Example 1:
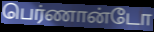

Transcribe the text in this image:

பெர்ணான்டோ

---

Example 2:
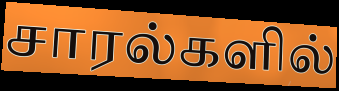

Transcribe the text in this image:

சாரல்களில்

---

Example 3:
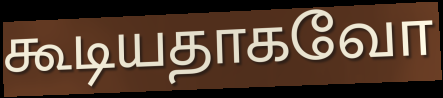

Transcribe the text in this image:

கூடியதாகவோ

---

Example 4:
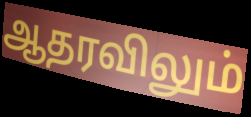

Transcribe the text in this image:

ஆதரவிலும்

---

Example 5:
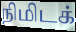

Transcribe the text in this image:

நிமிடக்